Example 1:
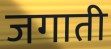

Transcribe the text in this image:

जगाती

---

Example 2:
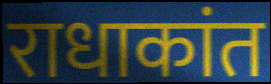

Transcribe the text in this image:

राधाकांत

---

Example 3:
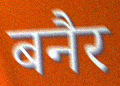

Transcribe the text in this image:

बनैर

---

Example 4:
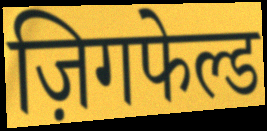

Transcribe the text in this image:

ज़िगफेल्ड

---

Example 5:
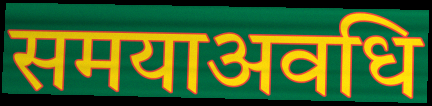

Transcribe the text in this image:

समयाअवधि